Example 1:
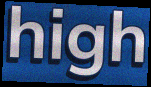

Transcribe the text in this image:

high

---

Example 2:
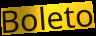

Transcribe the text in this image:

Boleto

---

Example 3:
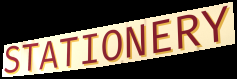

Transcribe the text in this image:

STATIONERY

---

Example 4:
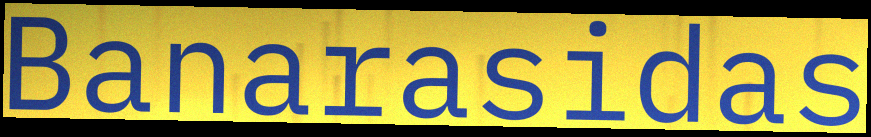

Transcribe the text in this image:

Banarasidas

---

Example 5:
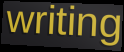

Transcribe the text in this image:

writing